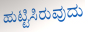
ಹುಟ್ಟಿಸಿರುವುದು